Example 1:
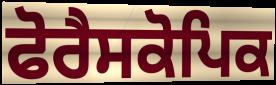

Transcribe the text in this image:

ਫੋਰੈਸਕੋਪਿਕ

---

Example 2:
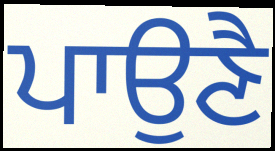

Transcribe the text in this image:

ਪਾਉਣੈ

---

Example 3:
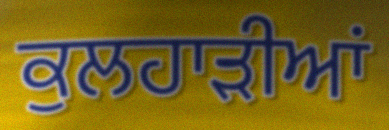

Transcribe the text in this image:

ਕੁਲਹਾੜੀਆਂ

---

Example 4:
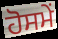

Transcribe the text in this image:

ਹੋਸਮੇਂ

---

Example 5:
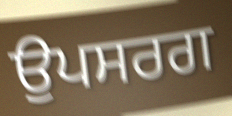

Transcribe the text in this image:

ਉਪਸਰਗ